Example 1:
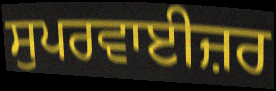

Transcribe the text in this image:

ਸੁਪਰਵਾਈਜ਼ਰ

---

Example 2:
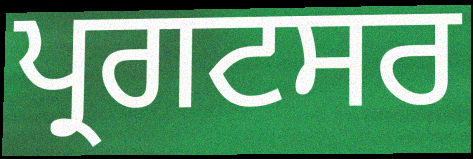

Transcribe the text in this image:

ਪ੍ਰਗਟਸਰ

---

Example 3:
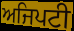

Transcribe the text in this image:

ਅਜਿਪਟੀ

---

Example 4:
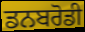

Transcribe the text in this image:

ਡਨਬਰੋਡੀ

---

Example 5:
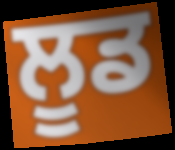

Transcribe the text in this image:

ਲੂਡ